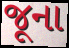
જૂના